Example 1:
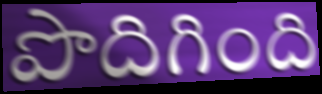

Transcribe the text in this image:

పొదిగింది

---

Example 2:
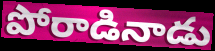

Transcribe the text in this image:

పోరాడినాడు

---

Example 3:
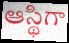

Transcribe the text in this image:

ఆస్థిగా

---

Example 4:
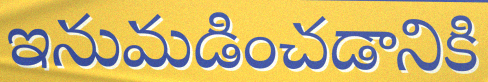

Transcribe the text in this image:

ఇనుమడించడానికి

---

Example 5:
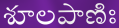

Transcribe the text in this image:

శూలపాణిః